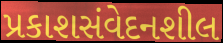
પ્રકાશસંવેદનશીલ